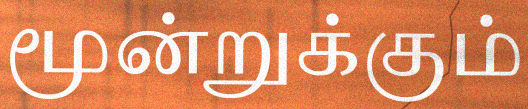
மூன்றுக்கும்